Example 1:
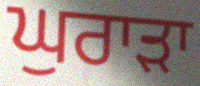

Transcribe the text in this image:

ਘੁਰਾੜਾ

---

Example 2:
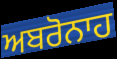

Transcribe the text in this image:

ਅਬਰੋਨਾਹ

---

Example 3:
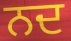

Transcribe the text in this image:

ਨਦ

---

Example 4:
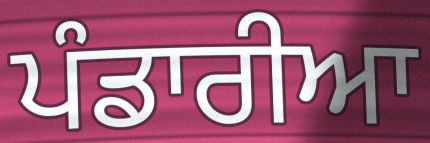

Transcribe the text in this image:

ਪੰਡਾਰੀਆ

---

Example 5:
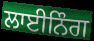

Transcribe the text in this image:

ਲਾਈਨਿੰਗ